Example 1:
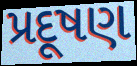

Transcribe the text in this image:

પ્રદૂષણ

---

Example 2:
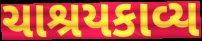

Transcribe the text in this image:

ચાશ્રયકાવ્ય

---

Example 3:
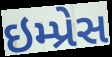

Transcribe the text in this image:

ઇમ્પ્રેસ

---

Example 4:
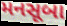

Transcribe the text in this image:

મનસૂબા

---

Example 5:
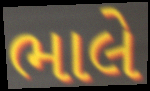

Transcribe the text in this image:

ભાલે